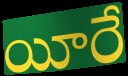
యీరే